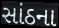
સાંઠના